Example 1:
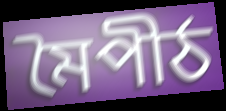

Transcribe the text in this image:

মৈপীঠ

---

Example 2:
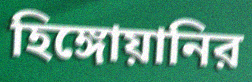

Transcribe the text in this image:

হিঙ্গোয়ানির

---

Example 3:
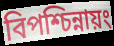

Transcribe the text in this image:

বিপশ্চিন্নায়ং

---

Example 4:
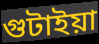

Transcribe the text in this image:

গুটাইয়া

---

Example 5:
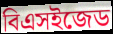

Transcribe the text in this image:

বিএসইজেড